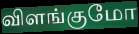
விளங்குமோ